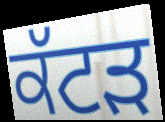
ਕੱਟੜ